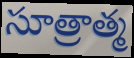
సూత్రాత్మ